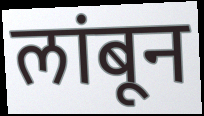
लांबून